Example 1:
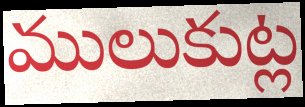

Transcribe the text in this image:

ములుకుట్ల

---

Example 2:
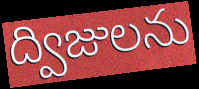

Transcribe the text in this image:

ద్విజులను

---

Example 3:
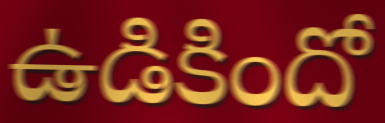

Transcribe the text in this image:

ఉడికిందో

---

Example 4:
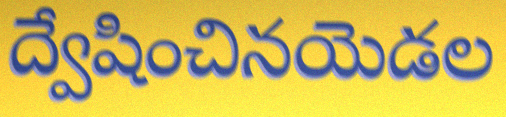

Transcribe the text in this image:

ద్వేషించినయెడల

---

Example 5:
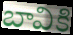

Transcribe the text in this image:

బావికి